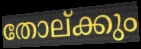
തോല്ക്കും